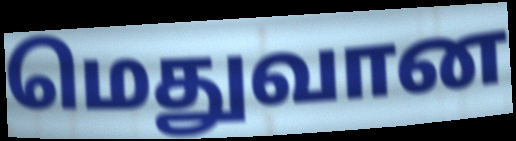
மெதுவான